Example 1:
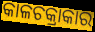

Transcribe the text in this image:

କାଳଚକ୍ରାକାର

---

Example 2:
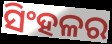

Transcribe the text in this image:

ସିଂହଳର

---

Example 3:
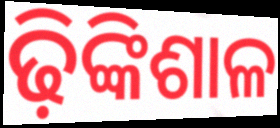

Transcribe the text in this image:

ଢ଼ିଙ୍କିଶାଳ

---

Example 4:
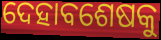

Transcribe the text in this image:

ଦେହାବଶେଷକୁ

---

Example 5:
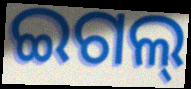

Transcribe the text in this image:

ଇଗଲ୍